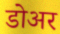
डोअर